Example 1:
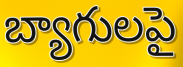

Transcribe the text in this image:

బ్యాగులపై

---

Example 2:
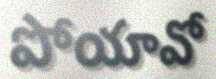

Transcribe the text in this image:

పోయావో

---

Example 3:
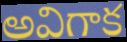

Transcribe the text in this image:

అవిగాక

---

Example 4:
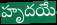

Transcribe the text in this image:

హృదయే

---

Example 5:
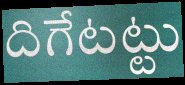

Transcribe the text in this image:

దిగేటట్టు